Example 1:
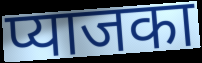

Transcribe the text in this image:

प्याजका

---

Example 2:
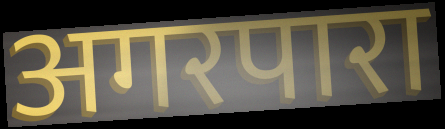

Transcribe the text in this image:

अगरपारा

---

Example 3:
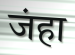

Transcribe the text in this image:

जंहा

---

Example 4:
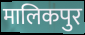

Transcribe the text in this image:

मालिकपुर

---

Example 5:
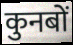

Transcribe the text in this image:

कुनबों